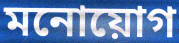
মনোয়োগ